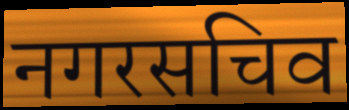
नगरसचिव